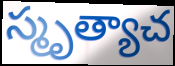
స్మృత్యాచ